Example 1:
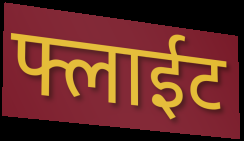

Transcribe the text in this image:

फ्लाईट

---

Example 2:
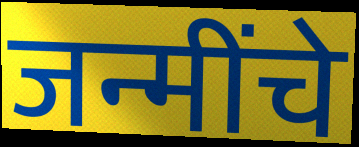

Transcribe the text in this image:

जन्मींचे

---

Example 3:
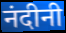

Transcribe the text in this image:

नंदीनी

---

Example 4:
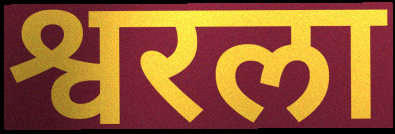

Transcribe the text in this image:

श्वरला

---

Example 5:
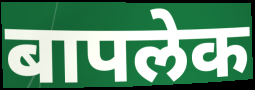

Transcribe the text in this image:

बापलेक